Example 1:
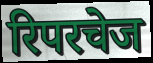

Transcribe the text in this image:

रिपरचेज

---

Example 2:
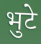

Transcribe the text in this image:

भुटे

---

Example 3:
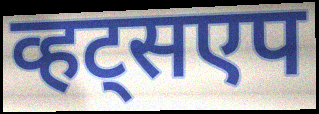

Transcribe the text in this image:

व्हट्सएप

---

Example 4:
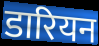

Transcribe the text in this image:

डारियन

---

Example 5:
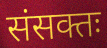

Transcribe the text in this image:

संसक्तः